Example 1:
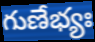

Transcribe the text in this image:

గుణేభ్యః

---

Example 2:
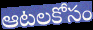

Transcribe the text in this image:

ఆటలకోసం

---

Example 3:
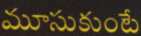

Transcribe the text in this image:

మూసుకుంటే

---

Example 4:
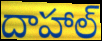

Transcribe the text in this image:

దాహాల్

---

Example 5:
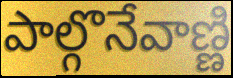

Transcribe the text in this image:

పాల్గొనేవాణ్ణి